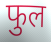
फुल